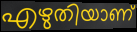
എഴുതിയാണ്